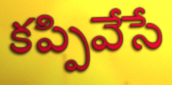
కప్పివేసే